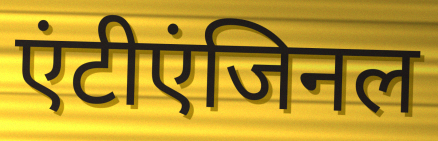
एंटीएंजिनल